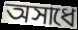
অসাধে